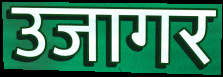
उजागर